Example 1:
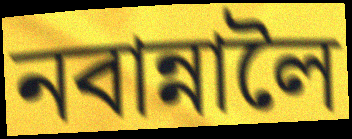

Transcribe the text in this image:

নবান্নালৈ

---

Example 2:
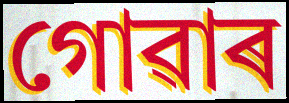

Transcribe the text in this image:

গোৱাৰ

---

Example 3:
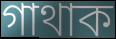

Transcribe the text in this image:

গাথাক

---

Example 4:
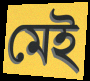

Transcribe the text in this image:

মেই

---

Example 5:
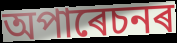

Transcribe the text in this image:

অপাৰেচনৰ